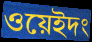
ওয়েইদং